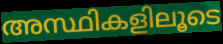
അസ്ഥികളിലൂടെ